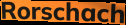
Rorschach